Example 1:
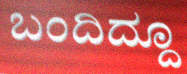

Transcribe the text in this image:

ಬಂದಿದ್ದೂ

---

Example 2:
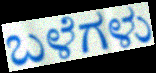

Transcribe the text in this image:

ಬಳೆಗಳು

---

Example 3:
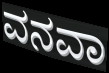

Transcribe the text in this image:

ವನವಾ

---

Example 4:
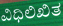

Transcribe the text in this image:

ವಿಧಿಲಿಖಿತ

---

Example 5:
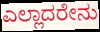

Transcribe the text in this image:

ಎಲ್ಲಾದರೇನು